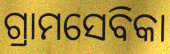
ଗ୍ରାମସେବିକା